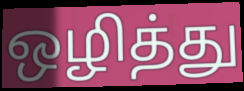
ஒழித்து